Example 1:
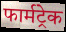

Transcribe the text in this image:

फार्मट्रेक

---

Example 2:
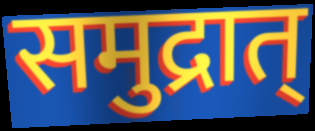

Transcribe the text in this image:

समुद्रात्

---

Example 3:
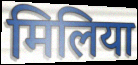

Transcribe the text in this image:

मिलिया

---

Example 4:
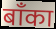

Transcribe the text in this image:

बाँका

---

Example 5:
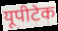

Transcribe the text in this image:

यूपीटेक